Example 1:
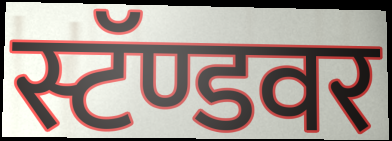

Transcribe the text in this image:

स्टॅण्डवर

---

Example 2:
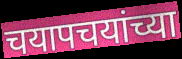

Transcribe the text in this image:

चयापचयांच्या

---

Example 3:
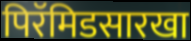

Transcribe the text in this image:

पिरॅमिडसारखा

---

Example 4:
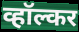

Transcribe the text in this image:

व्हॉल्कर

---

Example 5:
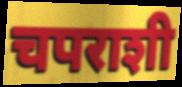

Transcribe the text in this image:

चपराशी